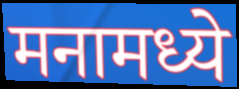
मनामध्ये